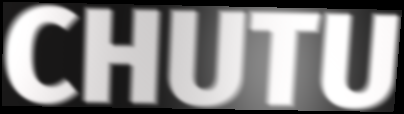
CHUTU